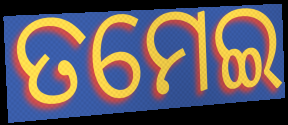
ତମେଇ